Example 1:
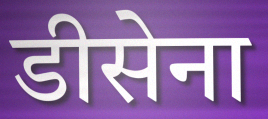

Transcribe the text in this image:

डीसेना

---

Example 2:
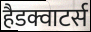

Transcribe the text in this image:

हैडक्वाटर्स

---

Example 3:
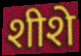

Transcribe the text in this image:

शीशे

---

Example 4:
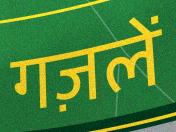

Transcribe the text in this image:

गज़लें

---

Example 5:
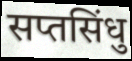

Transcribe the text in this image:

सप्तसिंधु